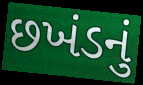
છખંડનું